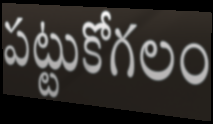
పట్టుకోగలం